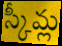
స్కీమ్ల